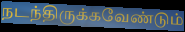
நடந்திருக்கவேண்டும்